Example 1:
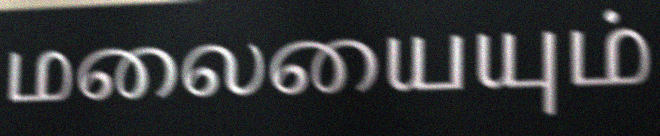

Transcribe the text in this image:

மலையையும்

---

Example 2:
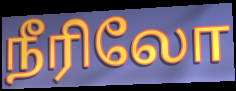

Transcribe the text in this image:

நீரிலோ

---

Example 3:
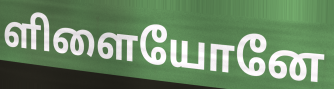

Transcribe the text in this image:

ளிளையோனே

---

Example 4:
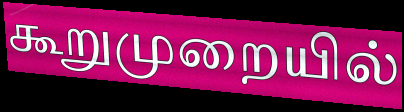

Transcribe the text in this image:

கூறுமுறையில்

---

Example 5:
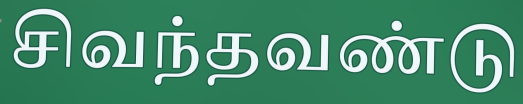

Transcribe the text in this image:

சிவந்தவண்டு